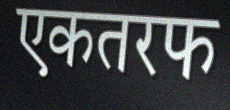
एकतरफ